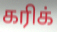
கரிக்